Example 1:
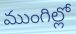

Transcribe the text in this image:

ముంగిల్లో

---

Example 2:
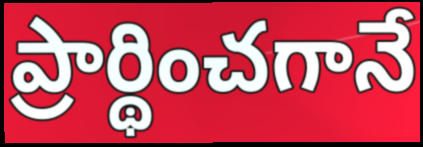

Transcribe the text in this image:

ప్రార్థించగానే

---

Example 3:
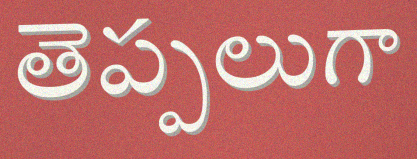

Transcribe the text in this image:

తెప్పలుగా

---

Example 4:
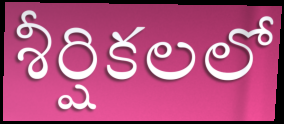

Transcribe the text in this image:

శీర్షికలలో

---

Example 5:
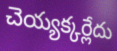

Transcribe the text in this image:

చెయ్యక్కర్లేదు